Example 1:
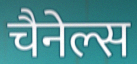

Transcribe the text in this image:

चैनेल्स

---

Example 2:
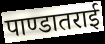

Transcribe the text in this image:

पाण्डातराई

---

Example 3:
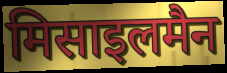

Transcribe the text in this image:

मिसाइलमैन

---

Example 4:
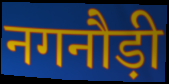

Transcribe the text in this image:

नगनौड़ी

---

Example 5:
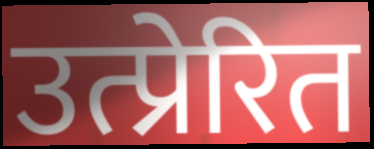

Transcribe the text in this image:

उत्‍प्रेरित